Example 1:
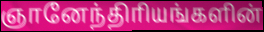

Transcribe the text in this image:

ஞானேந்திரியங்களின்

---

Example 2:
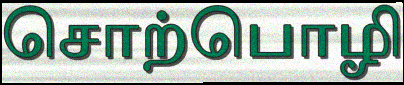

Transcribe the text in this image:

சொற்பொழி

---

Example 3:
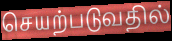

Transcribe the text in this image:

செயற்படுவதில்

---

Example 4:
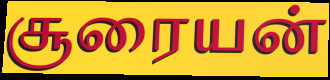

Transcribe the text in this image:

சூரையன்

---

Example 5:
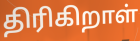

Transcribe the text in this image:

திரிகிறாள்